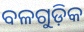
ବଳଗୁଡ଼ିକ